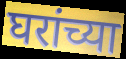
घरांच्या